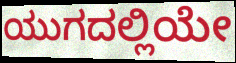
ಯುಗದಲ್ಲಿಯೇ